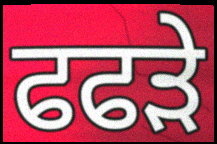
ਫਫੜੇ